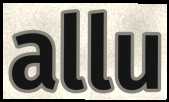
allu